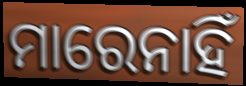
ମାରେନାହିଁ